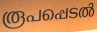
രൂപപ്പെടൽ